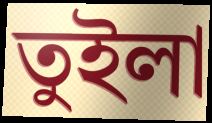
তুইলা